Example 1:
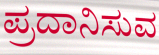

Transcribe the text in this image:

ಪ್ರದಾನಿಸುವ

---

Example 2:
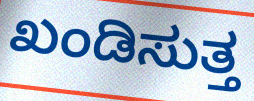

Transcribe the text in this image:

ಖಂಡಿಸುತ್ತ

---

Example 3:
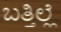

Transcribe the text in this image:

ಬತ್ತಿಲ್ಲೆ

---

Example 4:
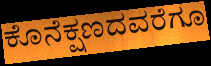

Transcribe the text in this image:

ಕೊನೆಕ್ಷಣದವರೆಗೂ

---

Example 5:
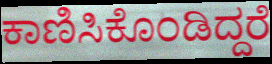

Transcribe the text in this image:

ಕಾಣಿಸಿಕೊಂಡಿದ್ದರೆ